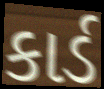
કાર્ડ